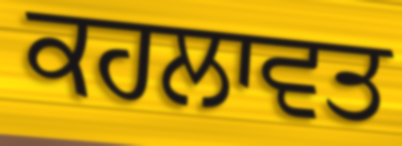
ਕਹਲਾਵਤ